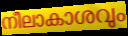
നീലാകാശവും